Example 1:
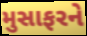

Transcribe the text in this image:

મુસાફરને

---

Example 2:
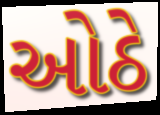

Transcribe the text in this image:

ઓઠે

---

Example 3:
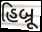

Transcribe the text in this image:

હિબ્રૂ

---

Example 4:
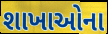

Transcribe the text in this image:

શાખાઓના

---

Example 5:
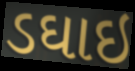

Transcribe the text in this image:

ડઘાઇ